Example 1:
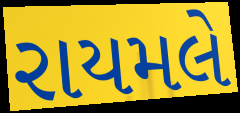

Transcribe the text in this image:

રાયમલે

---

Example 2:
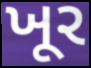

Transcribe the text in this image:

ખૂર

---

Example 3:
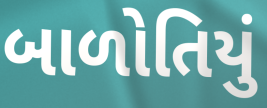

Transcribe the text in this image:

બાળોતિયું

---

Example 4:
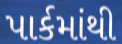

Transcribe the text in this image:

પાર્કમાંથી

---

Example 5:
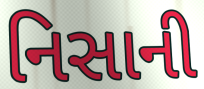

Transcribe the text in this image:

નિસાની